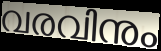
വരവിനും